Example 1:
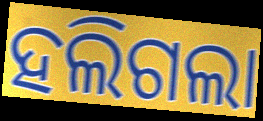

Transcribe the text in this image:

ହଲିଗଲା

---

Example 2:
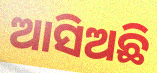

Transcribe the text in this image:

ଆସିଅଛି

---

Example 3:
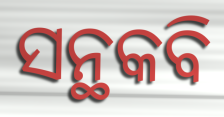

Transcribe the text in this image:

ସନ୍ଥକବି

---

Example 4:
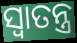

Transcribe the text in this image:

ସ୍ୱାତନ୍ତ୍ର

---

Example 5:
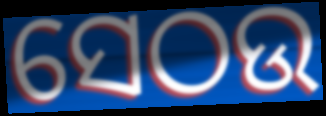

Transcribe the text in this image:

ସେଠଉ